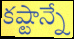
కష్టాన్నే